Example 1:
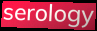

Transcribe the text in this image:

serology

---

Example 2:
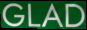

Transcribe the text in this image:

GLAD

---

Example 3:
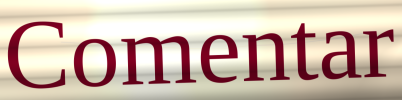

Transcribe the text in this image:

Comentar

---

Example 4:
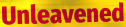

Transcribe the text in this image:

Unleavened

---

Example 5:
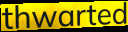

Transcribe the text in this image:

thwarted